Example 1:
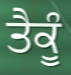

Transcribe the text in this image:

ਤੈਕੂੰ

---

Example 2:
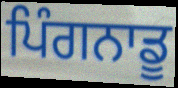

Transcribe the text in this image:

ਪਿੰਗਨਾਡੂ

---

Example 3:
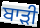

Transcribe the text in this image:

ਬਾੜੀ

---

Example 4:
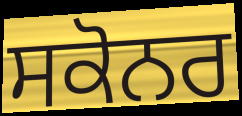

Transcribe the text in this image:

ਸਕੋਨਰ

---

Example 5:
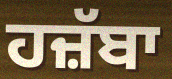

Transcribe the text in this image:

ਹਜ਼ੱਬਾ